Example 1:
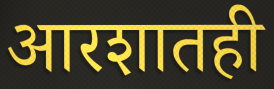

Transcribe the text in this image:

आरशातही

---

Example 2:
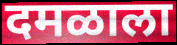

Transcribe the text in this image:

दमळाला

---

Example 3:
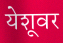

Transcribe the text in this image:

येशूवर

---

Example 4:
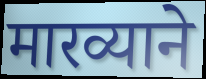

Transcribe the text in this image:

मारव्याने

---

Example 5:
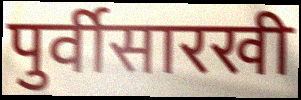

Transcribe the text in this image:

पुर्वीसारखी